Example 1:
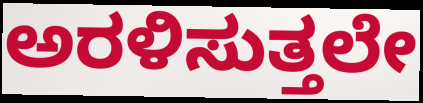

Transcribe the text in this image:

ಅರಳಿಸುತ್ತಲೇ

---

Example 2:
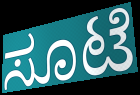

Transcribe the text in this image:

ಸೂಟೆ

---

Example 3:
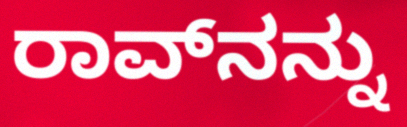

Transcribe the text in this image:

ರಾವ್‌ನನ್ನು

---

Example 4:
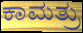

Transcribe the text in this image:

ಕಾಮತ್ರು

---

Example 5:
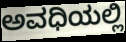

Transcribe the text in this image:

ಅವಧಿಯಲ್ಲಿ